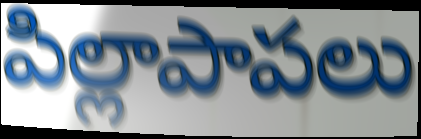
పిల్లాపాపలు